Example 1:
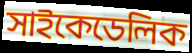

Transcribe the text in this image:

সাইকেডেলিক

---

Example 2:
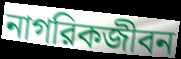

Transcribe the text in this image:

নাগরিকজীবন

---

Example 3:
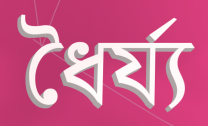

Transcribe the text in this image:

ধৈর্য্য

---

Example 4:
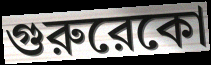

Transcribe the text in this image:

গুরুরেকো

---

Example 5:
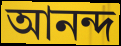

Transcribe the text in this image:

আনন্দ